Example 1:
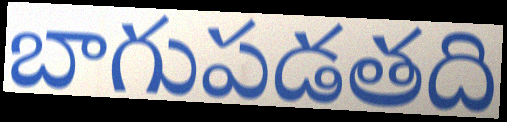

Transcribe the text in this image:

బాగుపడతది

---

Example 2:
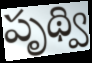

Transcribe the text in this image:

పృథ్వి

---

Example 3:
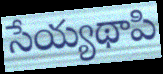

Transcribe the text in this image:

సేయ్యథాపి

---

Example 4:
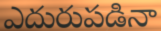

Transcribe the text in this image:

ఎదురుపడినా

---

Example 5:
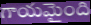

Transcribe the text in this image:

గాయమైంది